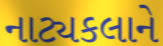
નાટ્યકલાને